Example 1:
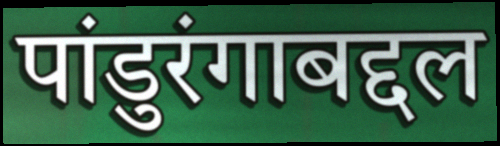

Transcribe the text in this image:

पांडुरंगाबद्दल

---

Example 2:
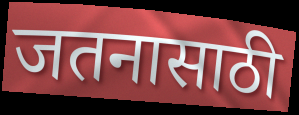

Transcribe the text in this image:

जतनासाठी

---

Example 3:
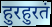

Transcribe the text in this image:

हुरहुरतं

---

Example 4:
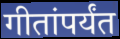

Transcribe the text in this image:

गीतांपर्यंत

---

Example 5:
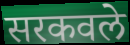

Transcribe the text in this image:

सरकवले